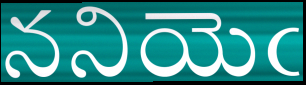
ననియెఁ